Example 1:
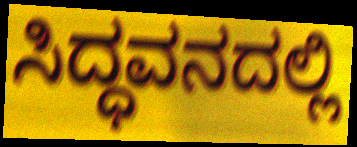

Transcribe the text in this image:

ಸಿದ್ಧವನದಲ್ಲಿ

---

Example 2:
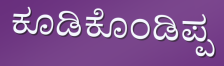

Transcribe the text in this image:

ಕೂಡಿಕೊಂಡಿಪ್ಪ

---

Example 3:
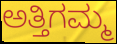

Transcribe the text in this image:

ಅತ್ತಿಗಮ್ಮ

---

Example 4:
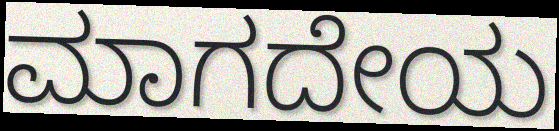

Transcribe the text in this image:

ಮಾಗದೇಯ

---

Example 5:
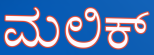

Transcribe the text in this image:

ಮಲಿಕ್